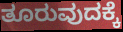
ತೂರುವುದಕ್ಕೆ